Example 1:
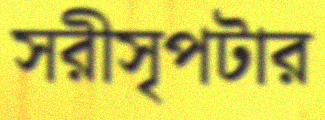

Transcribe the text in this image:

সরীসৃপটার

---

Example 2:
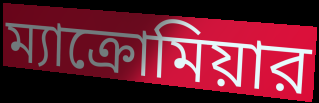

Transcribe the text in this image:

ম্যাক্রোমিয়ার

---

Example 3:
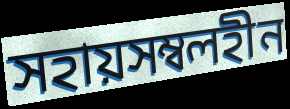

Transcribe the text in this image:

সহায়সম্বলহীন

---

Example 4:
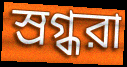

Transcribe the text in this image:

স্রগ্ধরা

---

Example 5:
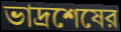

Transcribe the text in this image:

ভাদ্রশেষের